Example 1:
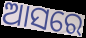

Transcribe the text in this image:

ଆସରେ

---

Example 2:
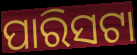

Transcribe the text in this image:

ପାରିସଟା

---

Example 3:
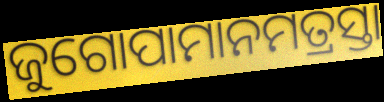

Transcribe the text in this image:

ଜୁଗୋପାମାନମତ୍ରସ୍ତା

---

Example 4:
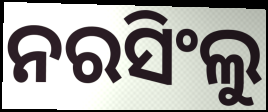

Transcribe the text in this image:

ନରସିଂଲୁ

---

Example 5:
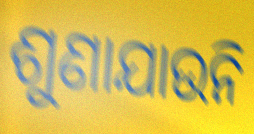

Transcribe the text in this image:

ଶୁଣାଯାଉନି